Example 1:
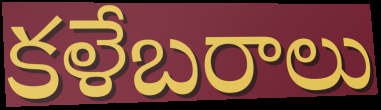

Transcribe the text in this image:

కళేబరాలు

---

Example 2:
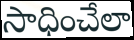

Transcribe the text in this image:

సాధించేలా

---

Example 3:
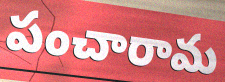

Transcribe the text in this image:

పంచారామ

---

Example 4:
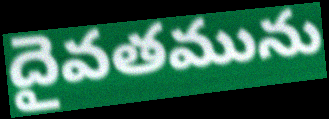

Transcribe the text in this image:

దైవతమును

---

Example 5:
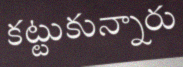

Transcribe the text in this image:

కట్టుకున్నారు